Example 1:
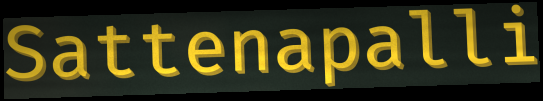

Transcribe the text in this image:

Sattenapalli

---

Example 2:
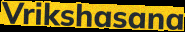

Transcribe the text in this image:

Vrikshasana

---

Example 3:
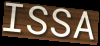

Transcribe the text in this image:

ISSA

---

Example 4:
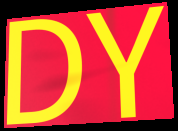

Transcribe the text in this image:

DY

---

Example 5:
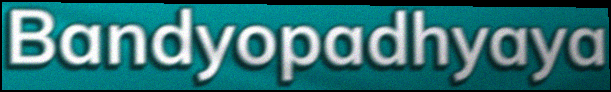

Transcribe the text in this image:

Bandyopadhyaya